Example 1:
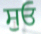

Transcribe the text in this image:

ਸੁਓ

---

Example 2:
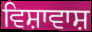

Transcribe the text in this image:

ਵਿਸ਼ਾਵਾਸ਼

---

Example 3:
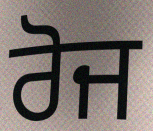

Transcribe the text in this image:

ਰੋਜ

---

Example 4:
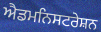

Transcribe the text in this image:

ਐਡਮਨਿਸਟਰੇਸ਼ਨ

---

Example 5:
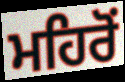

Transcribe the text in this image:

ਮਹਿਰੋਂ